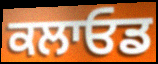
ਕਲਾਓਡ